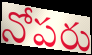
నోపరు